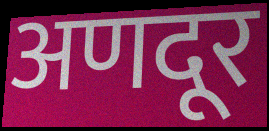
अणदूर